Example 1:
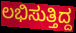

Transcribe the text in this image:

ಲಭಿಸುತ್ತಿದ್ದ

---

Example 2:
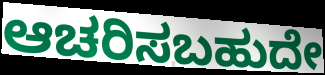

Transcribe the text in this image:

ಆಚರಿಸಬಹುದೇ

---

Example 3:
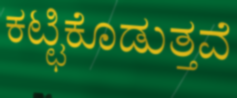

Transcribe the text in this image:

ಕಟ್ಟಿಕೊಡುತ್ತವೆ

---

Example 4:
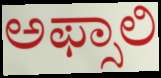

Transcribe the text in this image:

ಅಫ್ಸಾಲಿ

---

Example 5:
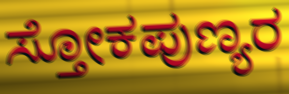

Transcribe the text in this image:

ಸ್ತೋಕಪುಣ್ಯರ